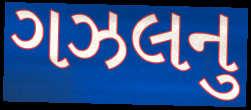
ગઝલનુ